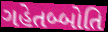
ગહેતબ્બોતિ